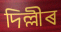
দিল্লীৰ